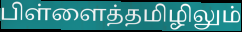
பிள்ளைத்தமிழிலும்